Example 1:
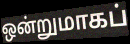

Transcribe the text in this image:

ஒன்றுமாகப்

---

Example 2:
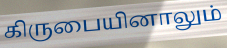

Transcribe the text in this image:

கிருபையினாலும்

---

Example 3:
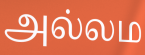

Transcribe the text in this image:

அல்லம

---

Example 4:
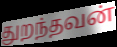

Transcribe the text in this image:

துறந்தவன்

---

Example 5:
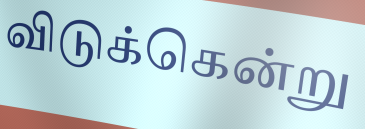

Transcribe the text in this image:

விடுக்கென்று